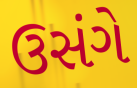
ઉસંગે